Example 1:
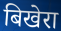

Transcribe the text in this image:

बिखेरा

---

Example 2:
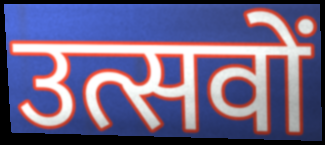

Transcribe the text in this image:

उत्सवों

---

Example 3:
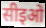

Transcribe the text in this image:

सीइओ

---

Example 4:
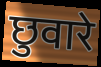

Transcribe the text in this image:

छुवारे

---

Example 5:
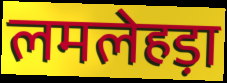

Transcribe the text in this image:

लमलेहड़ा